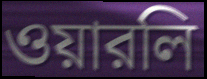
ওয়ারলি